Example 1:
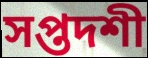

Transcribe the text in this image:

সপ্তদশী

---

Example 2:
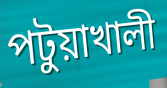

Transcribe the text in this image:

পটুয়াখালী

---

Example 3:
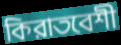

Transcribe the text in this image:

কিরাতবেশী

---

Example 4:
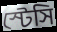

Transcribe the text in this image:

স্টেসি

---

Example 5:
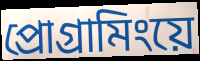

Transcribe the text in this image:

প্রোগ্রামিংয়ে